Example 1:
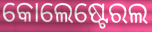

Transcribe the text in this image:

କୋଲେଷ୍ଟେରଲ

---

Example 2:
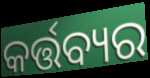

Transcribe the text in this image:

କର୍ତ୍ତବ୍ୟର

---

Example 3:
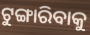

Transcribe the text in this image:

ଟୁଙ୍ଗାରିବାକୁ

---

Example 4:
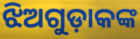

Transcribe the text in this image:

ଝିଅଗୁଡ଼ାକଙ୍କ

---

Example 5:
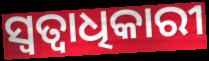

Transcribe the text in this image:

ସ୍ଵତ୍ୱାଧିକାରୀ